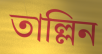
তাল্লিন